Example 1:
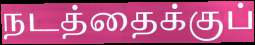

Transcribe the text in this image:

நடத்தைக்குப்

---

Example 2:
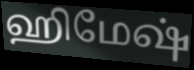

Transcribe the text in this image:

ஹிமேஷ்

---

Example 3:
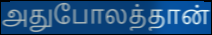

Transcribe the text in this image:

அதுபோலத்தான்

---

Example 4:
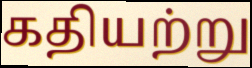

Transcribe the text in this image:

கதியற்று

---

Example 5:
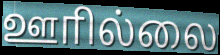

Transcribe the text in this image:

ஊரில்லை